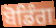
ਬੋਡਿੰਗ